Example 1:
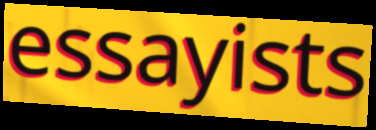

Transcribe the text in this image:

essayists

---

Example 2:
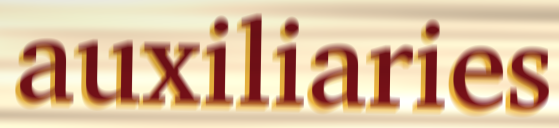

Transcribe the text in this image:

auxiliaries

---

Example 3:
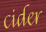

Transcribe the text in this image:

cider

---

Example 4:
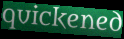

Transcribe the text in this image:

quickened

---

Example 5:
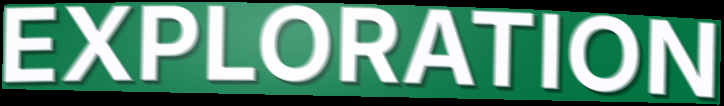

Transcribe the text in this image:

EXPLORATION